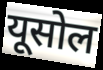
यूसोल